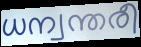
ധന്വന്തരീ